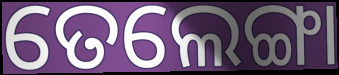
ତେଲେଙ୍ଗା